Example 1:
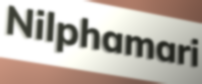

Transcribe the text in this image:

Nilphamari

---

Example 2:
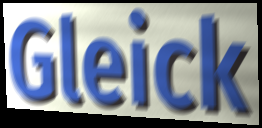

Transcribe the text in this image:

Gleick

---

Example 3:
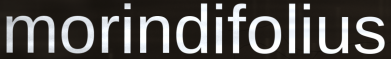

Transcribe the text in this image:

morindifolius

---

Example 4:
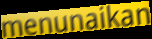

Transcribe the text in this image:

menunaikan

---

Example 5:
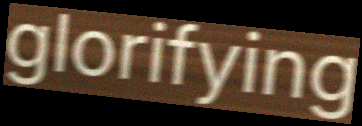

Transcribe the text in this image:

glorifying